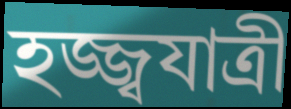
হজ্জ্বযাত্রী